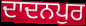
ਦਾਦਨਪੁਰ